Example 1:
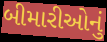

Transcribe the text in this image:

બીમારીઓનું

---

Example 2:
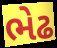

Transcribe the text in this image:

ભેઢ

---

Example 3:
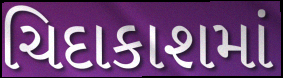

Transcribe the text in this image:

ચિદાકાશમાં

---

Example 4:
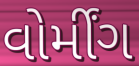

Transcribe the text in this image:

વોર્મીંગ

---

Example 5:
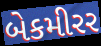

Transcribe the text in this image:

બેકમીરર